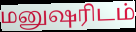
மனுஷரிடம்